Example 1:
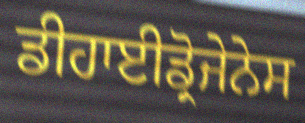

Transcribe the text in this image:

ਡੀਹਾਈਡ੍ਰੋਜੇਨੇਸ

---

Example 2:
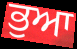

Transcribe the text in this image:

ਭੁਆ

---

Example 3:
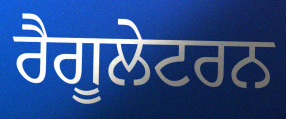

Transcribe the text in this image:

ਰੈਗੂਲੇਟਰਨ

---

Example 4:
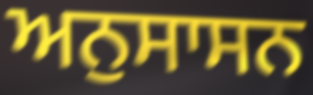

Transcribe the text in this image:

ਅਨੁਸਾਸਨ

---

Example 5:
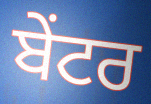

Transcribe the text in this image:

ਬੇਂਟਰ